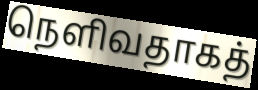
நெளிவதாகத்